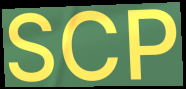
SCP